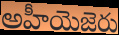
అహీయెజెరు